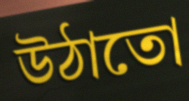
উঠাতো